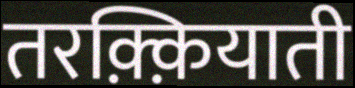
तरक़्क़ियाती